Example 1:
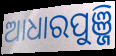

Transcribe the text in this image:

ଆଧାରପୁଞ୍ଜି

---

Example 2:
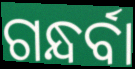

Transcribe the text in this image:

ଗନ୍ଧର୍ବା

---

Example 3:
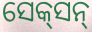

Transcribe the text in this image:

ସେକ୍‌ସନ୍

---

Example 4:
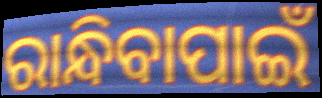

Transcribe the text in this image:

ରାନ୍ଧିବାପାଇଁ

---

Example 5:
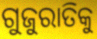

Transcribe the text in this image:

ଗୁଜୁରାତିକୁ